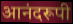
आनंदरूपी